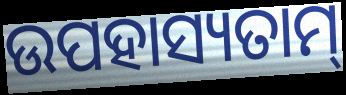
ଉପହାସ୍ୟତାମ୍